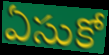
ఏసుకో